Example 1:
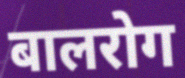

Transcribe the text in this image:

बालरोग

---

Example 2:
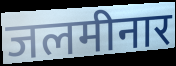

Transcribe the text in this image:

जलमीनार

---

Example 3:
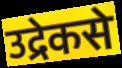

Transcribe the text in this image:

उद्रेकसे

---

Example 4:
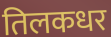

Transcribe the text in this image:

तिलकधर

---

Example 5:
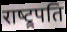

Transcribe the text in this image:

राष्ट्र्रपति